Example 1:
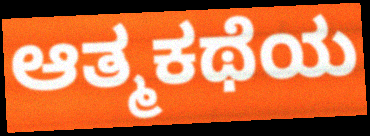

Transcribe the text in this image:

ಆತ್ಮಕಥೆಯ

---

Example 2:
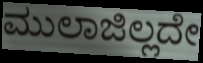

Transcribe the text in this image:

ಮುಲಾಜಿಲ್ಲದೇ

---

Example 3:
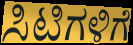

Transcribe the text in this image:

ಸಿಟಿಗಳಿಗೆ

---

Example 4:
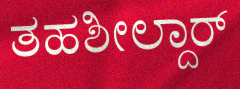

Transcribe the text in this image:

ತಹಶೀಲ್ದಾರ್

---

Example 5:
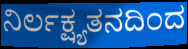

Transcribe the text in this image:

ನಿರ್ಲಕ್ಷ್ಯತನದಿಂದ